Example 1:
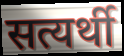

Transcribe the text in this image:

सत्यर्थी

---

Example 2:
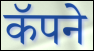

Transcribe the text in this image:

कॅपने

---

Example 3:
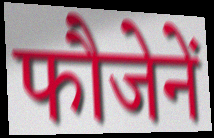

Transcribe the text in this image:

फौजेनें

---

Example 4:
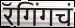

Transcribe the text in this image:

रॅगिंगचं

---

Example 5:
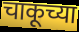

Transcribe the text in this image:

चाकूच्या